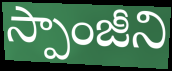
స్పాంజీని